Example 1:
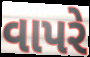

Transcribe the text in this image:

વાપરે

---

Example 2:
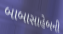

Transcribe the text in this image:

બાબાસાહેબની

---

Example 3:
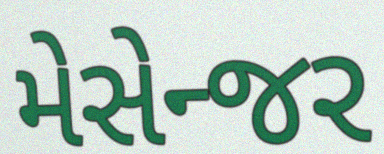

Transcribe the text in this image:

મેસેન્જર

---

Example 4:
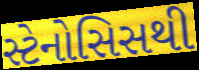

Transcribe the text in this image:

સ્ટેનોસિસથી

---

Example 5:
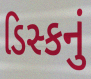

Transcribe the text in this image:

ડિસ્કનું